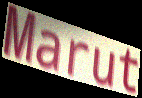
Marut